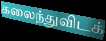
கலைந்துவிடக்